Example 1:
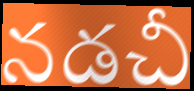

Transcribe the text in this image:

నడచీ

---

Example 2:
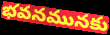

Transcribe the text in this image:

భవనమునకు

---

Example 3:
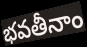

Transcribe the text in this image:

భవతీనాం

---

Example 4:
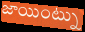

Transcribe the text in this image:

జాయింట్ను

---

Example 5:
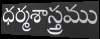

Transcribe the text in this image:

ధర్మశాస్త్రము